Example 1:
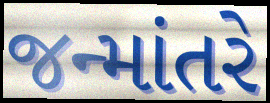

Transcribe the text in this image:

જન્માંતરે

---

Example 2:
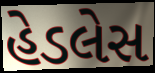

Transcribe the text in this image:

હેડલેસ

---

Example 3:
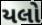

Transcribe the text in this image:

યલો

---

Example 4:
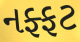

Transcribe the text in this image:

નફ્ફટ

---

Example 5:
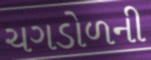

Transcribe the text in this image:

ચગડોળની